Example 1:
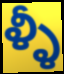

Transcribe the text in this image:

ళ్ళీ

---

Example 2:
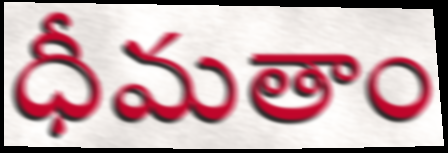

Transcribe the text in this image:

ధీమతాం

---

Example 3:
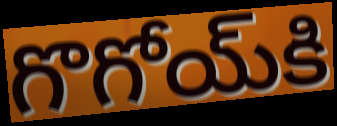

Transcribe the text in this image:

గొగోయ్‌కి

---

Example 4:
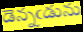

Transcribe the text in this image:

డెన్నఁడును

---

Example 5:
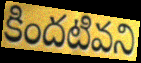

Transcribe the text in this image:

కిందటివని